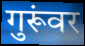
गुरूंवर